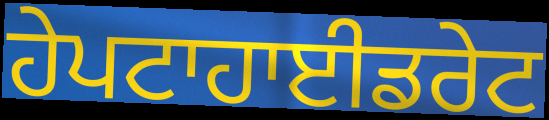
ਹੇਪਟਾਹਾਈਡਰੇਟ